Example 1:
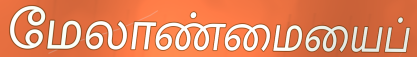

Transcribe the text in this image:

மேலாண்மையைப்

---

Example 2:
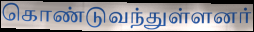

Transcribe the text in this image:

கொண்டுவந்துள்ளனர்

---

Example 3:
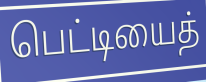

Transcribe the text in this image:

பெட்டியைத்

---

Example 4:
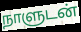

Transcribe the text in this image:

நாளுடன்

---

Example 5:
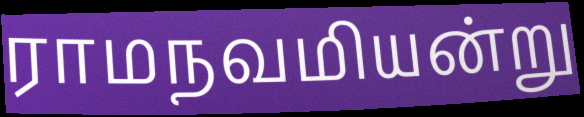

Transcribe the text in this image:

ராமநவமியன்று